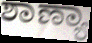
ಶಾಣ್ಯಾ